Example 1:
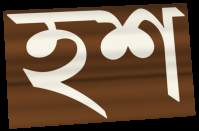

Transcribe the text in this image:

হশ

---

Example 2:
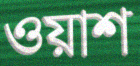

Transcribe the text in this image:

ওয়াশ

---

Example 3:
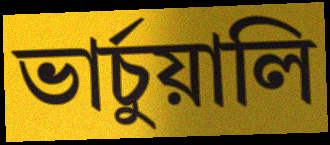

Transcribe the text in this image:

ভার্চুয়ালি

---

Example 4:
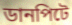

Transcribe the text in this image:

ডানপিটে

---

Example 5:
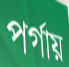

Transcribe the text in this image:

পর্গায়